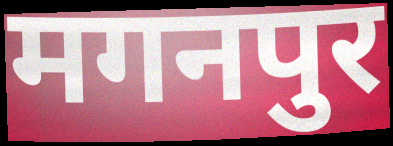
मगनपुर